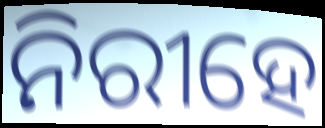
ନିରୀହେ